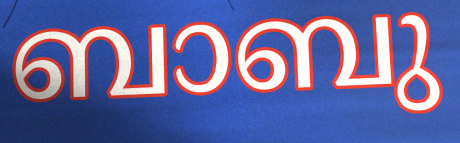
ബാബു